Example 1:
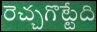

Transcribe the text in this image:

రెచ్చగొట్టేది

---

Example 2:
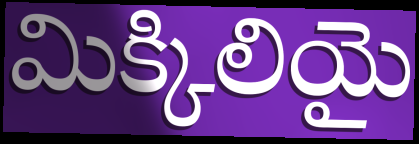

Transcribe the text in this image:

మిక్కిలియై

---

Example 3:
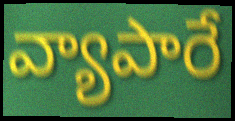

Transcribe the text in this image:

వ్యాపారే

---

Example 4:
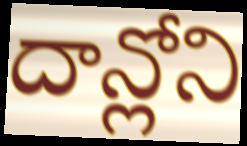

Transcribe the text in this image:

దాన్లోని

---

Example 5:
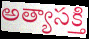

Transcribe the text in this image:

అత్యాసక్తి